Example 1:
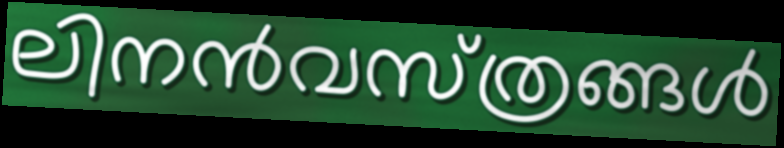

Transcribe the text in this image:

ലിനൻവസ്‌ത്രങ്ങൾ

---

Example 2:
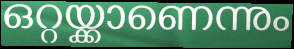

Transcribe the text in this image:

ഒറ്റയ്ക്കാണെന്നും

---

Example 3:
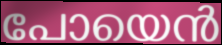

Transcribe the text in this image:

പോയെൻ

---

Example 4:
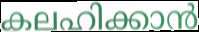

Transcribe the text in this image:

കലഹിക്കാൻ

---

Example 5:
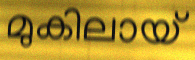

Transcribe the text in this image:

മുകിലായ്